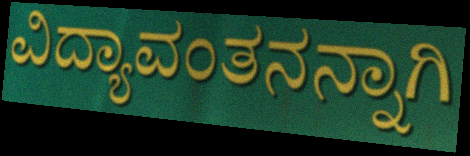
ವಿದ್ಯಾವಂತನನ್ನಾಗಿ